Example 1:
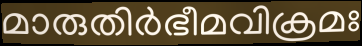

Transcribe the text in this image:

മാരുതിർഭീമവിക്രമഃ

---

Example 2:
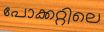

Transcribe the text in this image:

പോക്കറ്റിലെ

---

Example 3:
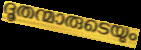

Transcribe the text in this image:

ദൂതന്മാരുടെയും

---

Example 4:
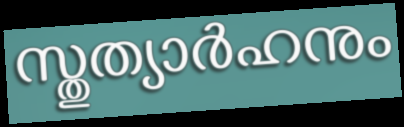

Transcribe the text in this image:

സ്തുത്യാർഹനും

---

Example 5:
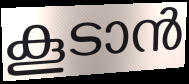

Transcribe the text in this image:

കൂടാൻ